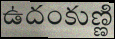
ఉదంకుణ్ణి